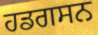
ਹਡਗਸਨ